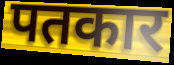
पतकार